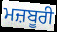
ਮਜ਼ਬੂਰੀ